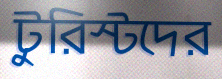
টুরিস্টদের